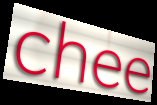
chee